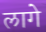
लागे